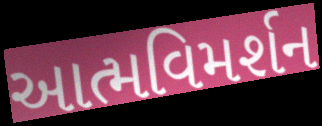
આત્મવિમર્શન